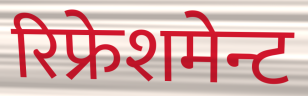
रिफ्रेशमेन्ट